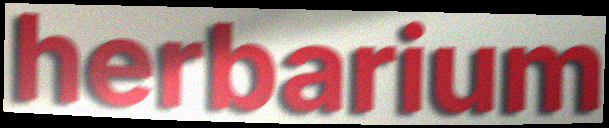
herbarium